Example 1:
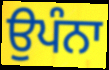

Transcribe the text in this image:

ਉਪੰਨਾ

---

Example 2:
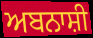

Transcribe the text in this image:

ਅਬਨਾਸ਼ੀ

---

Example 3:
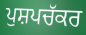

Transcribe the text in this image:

ਪੁਸ਼ਪਚੱਕਰ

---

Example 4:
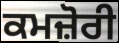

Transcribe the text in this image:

ਕਮਜ਼ੋਰੀ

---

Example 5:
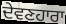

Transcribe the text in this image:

ਦੇਵਣਹਾਰਾ